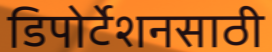
डिपोर्टेशनसाठी